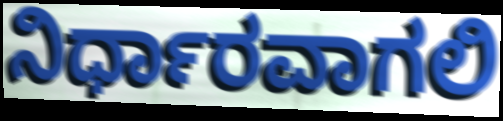
ನಿರ್ಧಾರವಾಗಲಿ